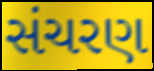
સંચરણ